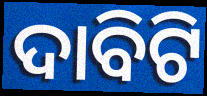
ଦାବିଟି